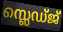
സ്ലെഡ്ജ്